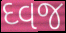
ઘ્વજ